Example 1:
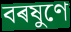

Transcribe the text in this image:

বৰষুণে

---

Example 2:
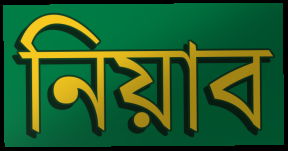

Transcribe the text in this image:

নিয়াব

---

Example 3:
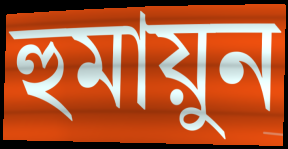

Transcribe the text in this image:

হুমায়ুন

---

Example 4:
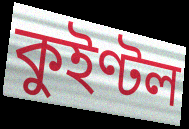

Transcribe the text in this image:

কুইণ্টল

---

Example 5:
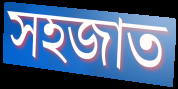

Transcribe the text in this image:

সহজাত